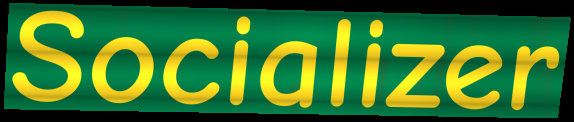
Socializer